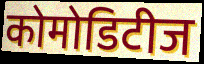
कोमोडिटीज